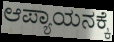
ಆಪ್ಯಾಯನಕ್ಕೆ